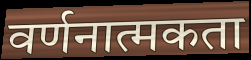
वर्णनात्मकता